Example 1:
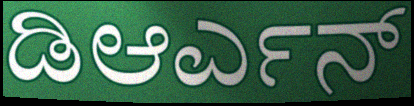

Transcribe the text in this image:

ಡಿಆರ್ಎನ್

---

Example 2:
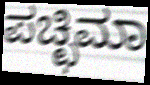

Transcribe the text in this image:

ಪಚ್ಛಿಮಾ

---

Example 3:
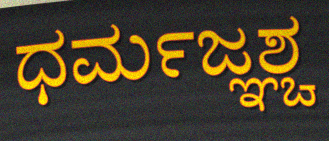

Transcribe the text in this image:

ಧರ್ಮಜ್ಞಶ್ಚ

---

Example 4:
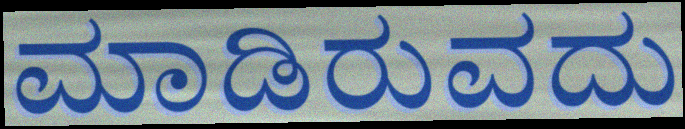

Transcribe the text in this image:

ಮಾಡಿರುವದು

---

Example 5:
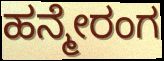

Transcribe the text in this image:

ಹನ್ಮೇರಂಗ